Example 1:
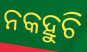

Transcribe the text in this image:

ନକହୁଚି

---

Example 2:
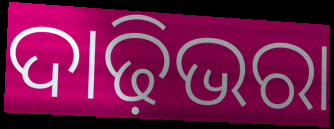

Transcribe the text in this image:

ଦାଢ଼ିଭରା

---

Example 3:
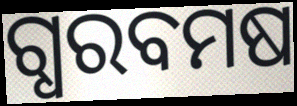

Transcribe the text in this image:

ଗ୍ଧରବମଷ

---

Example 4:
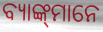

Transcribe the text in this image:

ବ୍ୟାଙ୍କ୍‌ମାନେ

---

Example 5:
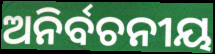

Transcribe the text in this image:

ଅନିର୍ବଚନୀୟ